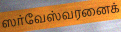
ஸர்வேஸ்வரனைக்